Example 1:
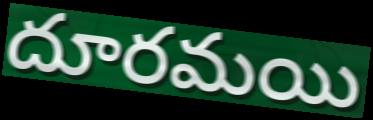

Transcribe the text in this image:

దూరమయి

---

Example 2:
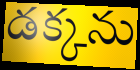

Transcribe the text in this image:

డక్కను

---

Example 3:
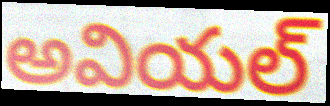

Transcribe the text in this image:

అవియల్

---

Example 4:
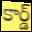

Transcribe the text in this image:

కార్డ్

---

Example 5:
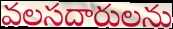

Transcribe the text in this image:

వలసదారులను